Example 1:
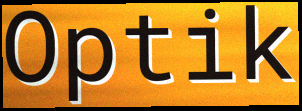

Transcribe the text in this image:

Optik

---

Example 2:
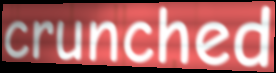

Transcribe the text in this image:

crunched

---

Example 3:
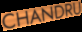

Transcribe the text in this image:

CHANDRU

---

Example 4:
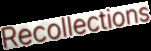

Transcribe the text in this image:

Recollections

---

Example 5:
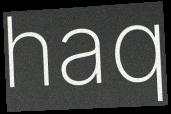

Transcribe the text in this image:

haq